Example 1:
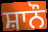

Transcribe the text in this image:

ਸ਼ਾਨੌ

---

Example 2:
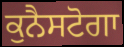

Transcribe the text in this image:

ਕੁਨੈਸਟੋਗਾ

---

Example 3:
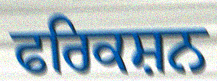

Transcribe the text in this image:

ਫਰਿਕਸ਼ਨ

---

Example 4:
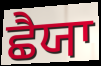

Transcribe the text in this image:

ਛੈਯਾ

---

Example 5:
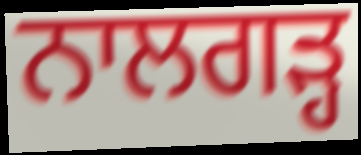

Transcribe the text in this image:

ਨਾਲਗੜ੍ਹ